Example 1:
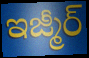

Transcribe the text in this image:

ఇజ్మీర్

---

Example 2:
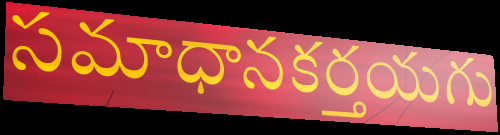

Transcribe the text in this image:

సమాధానకర్తయగు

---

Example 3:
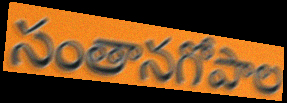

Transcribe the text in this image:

సంతానగోపాల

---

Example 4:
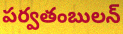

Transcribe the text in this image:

పర్వతంబులన్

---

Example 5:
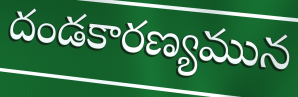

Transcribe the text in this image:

దండకారణ్యమున